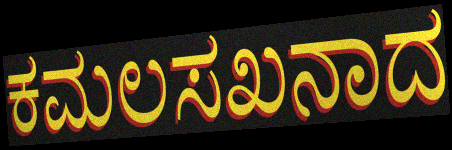
ಕಮಲಸಖನಾದ